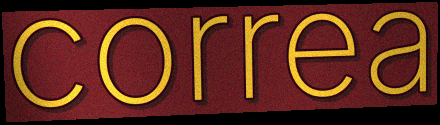
correa